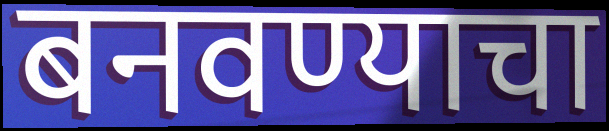
बनवण्याचा